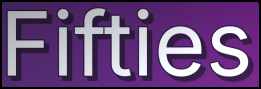
Fifties